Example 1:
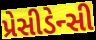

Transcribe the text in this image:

પ્રેસીડેન્સી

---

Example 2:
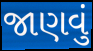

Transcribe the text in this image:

જાણવું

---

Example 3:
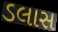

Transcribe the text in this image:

ડલાસ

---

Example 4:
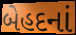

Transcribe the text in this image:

બેહદનાં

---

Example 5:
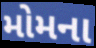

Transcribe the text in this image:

મોમના